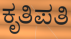
ಕೃತಿಪತಿ